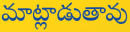
మాట్లాడుతావు